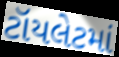
ટૉયલેટમાં